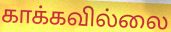
காக்கவில்லை